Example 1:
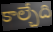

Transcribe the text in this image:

కాల్చేది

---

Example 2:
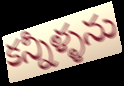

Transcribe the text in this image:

కన్నీళ్ళను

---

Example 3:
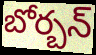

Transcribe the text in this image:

బోర్బన్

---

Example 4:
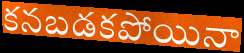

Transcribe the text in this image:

కనబడకపోయినా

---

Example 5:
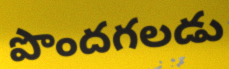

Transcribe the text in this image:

పొందగలడు